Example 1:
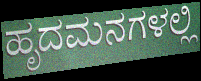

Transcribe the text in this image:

ಹೃದಮನಗಳಲ್ಲಿ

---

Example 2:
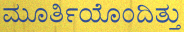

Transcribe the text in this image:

ಮೂರ್ತಿಯೊಂದಿತ್ತು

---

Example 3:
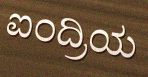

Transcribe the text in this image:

ಐಂದ್ರಿಯ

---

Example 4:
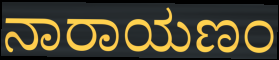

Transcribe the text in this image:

ನಾರಾಯಣಂ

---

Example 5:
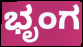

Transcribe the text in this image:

ಭೃಂಗ